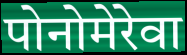
पोनोमेरेवा